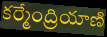
కర్మేంద్రియాణి